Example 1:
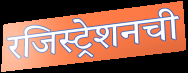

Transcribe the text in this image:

रजिस्ट्रेशनची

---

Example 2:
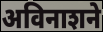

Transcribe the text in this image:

अविनाशने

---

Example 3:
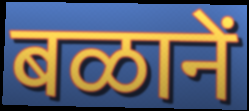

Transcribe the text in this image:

बळानें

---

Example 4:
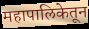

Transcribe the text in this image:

महापालिकेतून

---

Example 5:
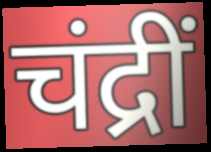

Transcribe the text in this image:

चंद्रीं